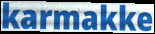
karmakke